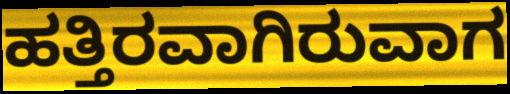
ಹತ್ತಿರವಾಗಿರುವಾಗ